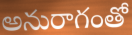
అనురాగంతో